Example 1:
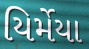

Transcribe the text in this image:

યિર્મેયા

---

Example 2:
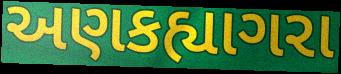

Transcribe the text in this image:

અણકહ્યાગરા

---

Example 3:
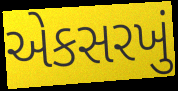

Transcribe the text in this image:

એકસરખું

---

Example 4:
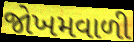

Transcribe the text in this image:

જોખમવાળી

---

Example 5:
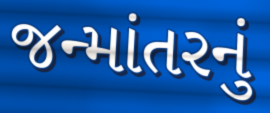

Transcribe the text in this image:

જન્માંતરનું